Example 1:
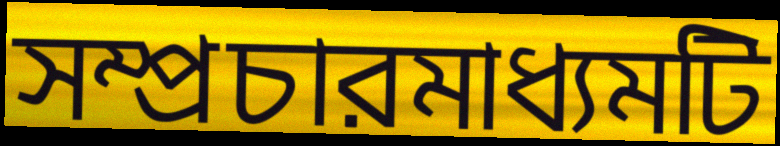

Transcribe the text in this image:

সম্প্রচারমাধ্যমটি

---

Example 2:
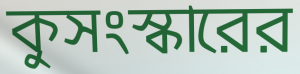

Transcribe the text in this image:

কুসংস্কারের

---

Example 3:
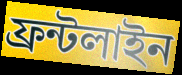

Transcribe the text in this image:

ফ্রন্টলাইন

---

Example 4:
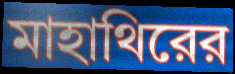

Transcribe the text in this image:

মাহাথিরের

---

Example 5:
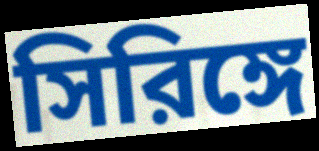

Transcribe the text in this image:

সিরিঙ্গে